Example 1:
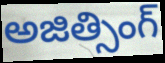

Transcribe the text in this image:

అజిత్సింగ్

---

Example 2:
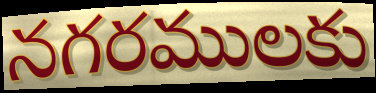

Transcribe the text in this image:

నగరములకు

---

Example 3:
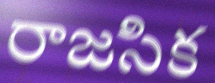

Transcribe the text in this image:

రాజసిక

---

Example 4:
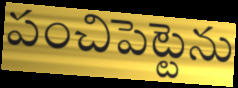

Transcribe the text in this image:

పంచిపెట్టెను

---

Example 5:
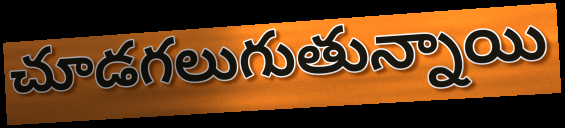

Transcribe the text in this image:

చూడగలుగుతున్నాయి